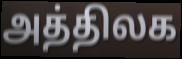
அத்திலக